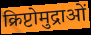
क्रिप्टोमुद्राओं